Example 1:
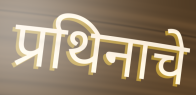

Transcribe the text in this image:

प्रथिनाचे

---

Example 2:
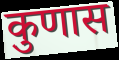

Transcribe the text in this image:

कुणास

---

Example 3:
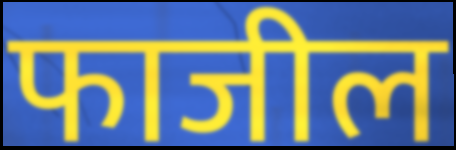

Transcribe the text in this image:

फाजील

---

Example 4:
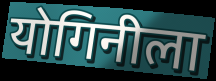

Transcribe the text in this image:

योगिनीला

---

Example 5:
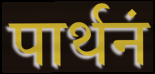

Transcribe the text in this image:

पार्थनं